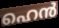
ഹെൻ